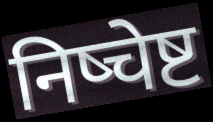
निष्चेष्ट